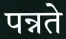
पन्नते